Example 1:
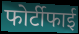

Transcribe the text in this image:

फोर्टीफाई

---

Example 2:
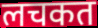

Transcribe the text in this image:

लचकत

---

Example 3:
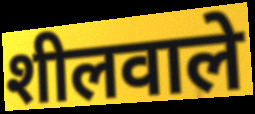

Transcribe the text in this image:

शीलवाले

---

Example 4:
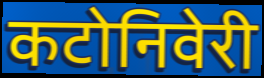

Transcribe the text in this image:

कटोनिवेरी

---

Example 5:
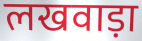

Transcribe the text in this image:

लखवाड़ा